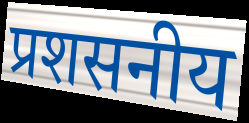
प्रशसनीय